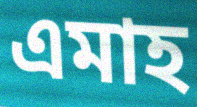
এমাহ